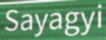
Sayagyi